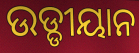
ଉଡ୍ଡୀୟାନ